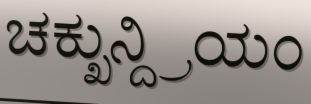
ಚಕ್ಖುನ್ದ್ರಿಯಂ